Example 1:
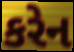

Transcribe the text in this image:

કરેન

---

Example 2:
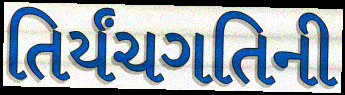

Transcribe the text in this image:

તિર્યંચગતિની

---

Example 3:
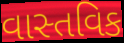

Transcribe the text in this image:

વાસ્તવિક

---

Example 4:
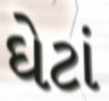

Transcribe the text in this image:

ઘેટાં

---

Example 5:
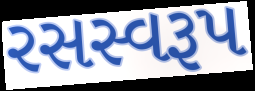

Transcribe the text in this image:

રસસ્વરૂપ